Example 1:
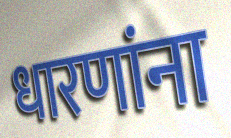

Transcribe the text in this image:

धारणांना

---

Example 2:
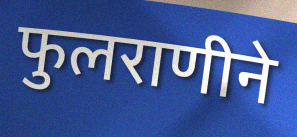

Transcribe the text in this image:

फुलराणीने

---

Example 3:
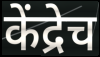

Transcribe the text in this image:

केंद्रेच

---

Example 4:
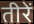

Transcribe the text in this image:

तीरें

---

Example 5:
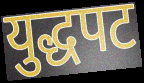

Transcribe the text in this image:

युद्धपट